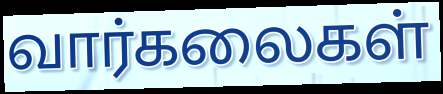
வார்கலைகள்